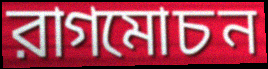
রাগমোচন